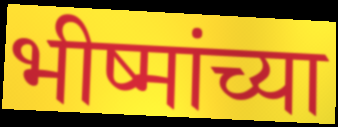
भीष्मांच्या